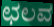
ಛಲವ